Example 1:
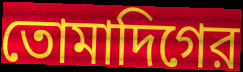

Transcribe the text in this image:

তোমাদিগের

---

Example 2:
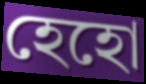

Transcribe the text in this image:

হেহো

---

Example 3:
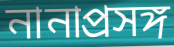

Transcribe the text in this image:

নানাপ্রসঙ্গ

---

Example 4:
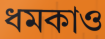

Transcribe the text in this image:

ধমকাও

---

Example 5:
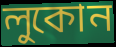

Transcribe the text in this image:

লুকোন